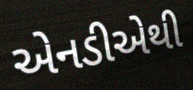
એનડીએથી